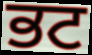
ਭਟ